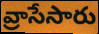
వ్రాసేసారు